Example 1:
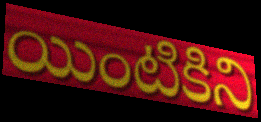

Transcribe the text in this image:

యింటికిని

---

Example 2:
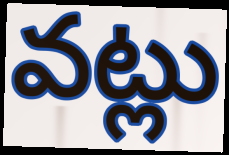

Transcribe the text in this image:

వట్లు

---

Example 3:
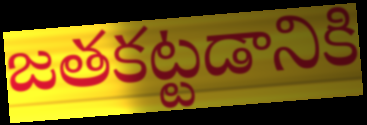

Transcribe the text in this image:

జతకట్టడానికి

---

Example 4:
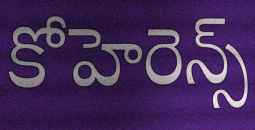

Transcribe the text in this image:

కోహెరెన్స్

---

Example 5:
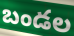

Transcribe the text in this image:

బండల